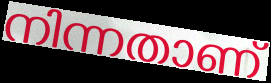
നിന്നതാണ്